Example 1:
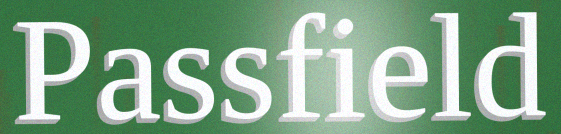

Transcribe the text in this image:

Passfield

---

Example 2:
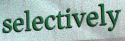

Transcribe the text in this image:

selectively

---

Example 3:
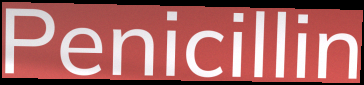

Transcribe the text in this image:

Penicillin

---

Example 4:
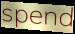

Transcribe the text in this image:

spend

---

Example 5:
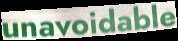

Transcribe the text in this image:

unavoidable